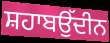
ਸ਼ਹਾਬਉੱਦੀਨ